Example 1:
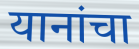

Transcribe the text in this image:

यानांचा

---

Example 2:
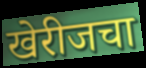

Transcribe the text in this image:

खेरीजचा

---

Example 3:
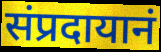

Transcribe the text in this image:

संप्रदायानं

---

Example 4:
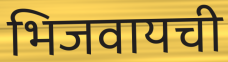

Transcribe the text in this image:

भिजवायची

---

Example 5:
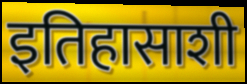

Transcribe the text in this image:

इतिहासाशी